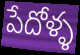
పేదోళ్ళ